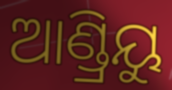
ଆଣ୍ଡ୍ରିୟୁ